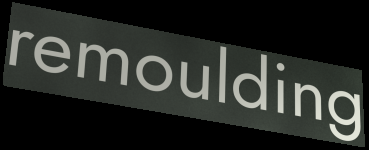
remoulding